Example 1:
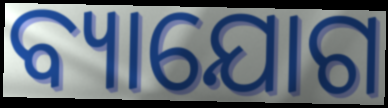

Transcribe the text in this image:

ବ୍ୟାଯୋଗ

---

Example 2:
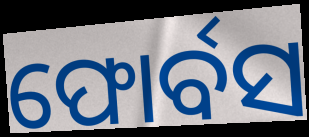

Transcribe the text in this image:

ଫୋର୍ବସ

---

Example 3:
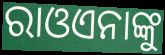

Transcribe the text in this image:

ରାଓଏନାଙ୍କୁ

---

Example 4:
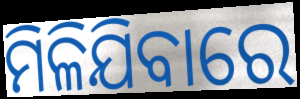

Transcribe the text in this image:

ମିଳିଯିବାରେ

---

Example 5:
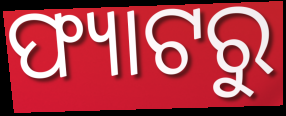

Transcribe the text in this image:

ଫ୍ୟାଟରୁ